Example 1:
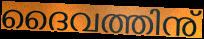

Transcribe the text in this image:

ദൈവത്തിനു്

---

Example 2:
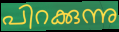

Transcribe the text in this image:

പിറക്കുന്നു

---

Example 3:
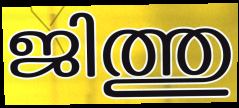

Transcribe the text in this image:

ജിത്തു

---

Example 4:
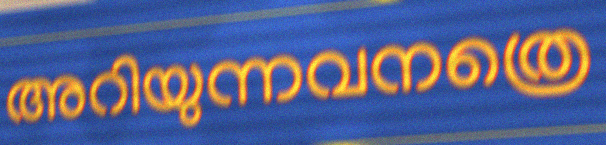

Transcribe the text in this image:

അറിയുന്നവനത്രെ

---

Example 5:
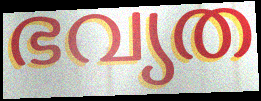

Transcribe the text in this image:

ഭവ്യത